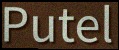
Putel